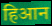
हिआन